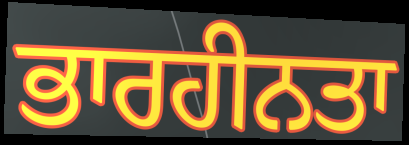
ਭਾਰਹੀਨਤਾ